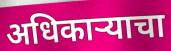
अधिकार्‍याचा